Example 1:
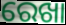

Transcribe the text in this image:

ରେଖା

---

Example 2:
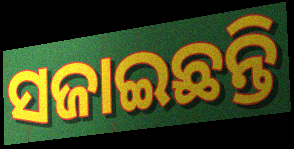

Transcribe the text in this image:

ସଜାଇଛନ୍ତି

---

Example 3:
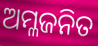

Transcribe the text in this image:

ଅମ୍ଳଜନିତ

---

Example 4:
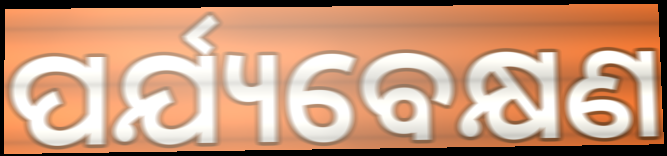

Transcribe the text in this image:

ପର୍ଯ୍ୟବେକ୍ଷଣ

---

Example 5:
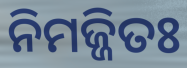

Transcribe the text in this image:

ନିମଜ୍ଜିତଃ